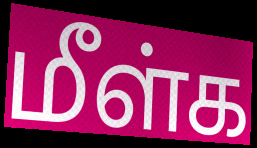
மீள்க